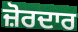
ਜ਼ੋਰਦਾਰ